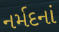
નર્મદનાં